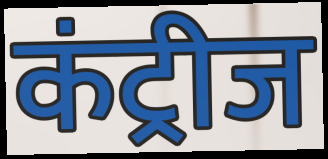
कंट्रीज